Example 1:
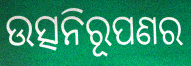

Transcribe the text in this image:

ଉତ୍ସନିରୂପଣର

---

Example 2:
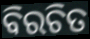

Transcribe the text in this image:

ବିରଚିତ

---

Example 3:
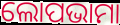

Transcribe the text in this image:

ଲୋପଭାମା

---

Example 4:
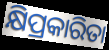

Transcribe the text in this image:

କ୍ଷିପ୍ରକାରିତା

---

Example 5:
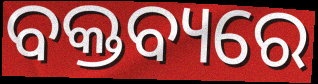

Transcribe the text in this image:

ବକ୍ତବ୍ୟରେ